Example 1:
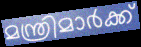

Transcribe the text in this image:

മന്ത്രിമാർക്ക്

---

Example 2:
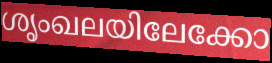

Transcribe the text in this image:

ശൃംഖലയിലേക്കോ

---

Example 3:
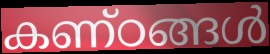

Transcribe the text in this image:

കണ്ഠങ്ങൾ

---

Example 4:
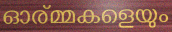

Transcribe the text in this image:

ഓര്മ്മകളെയും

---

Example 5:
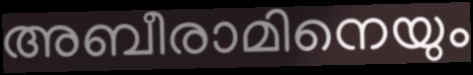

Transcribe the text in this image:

അബീരാമിനെയും